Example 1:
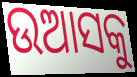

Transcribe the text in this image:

ଉଆସକୁ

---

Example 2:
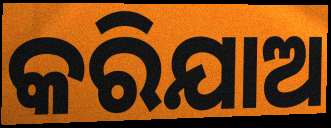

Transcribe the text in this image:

କରିଯାଅ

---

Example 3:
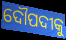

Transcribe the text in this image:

ଦୌପଦୀକୁ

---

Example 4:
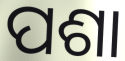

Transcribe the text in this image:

ପଶା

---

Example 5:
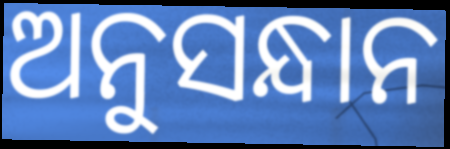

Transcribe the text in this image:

ଅନୁସନ୍ଧାନ